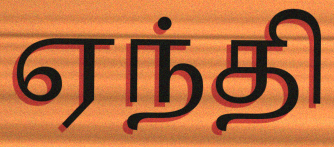
ஏந்தி